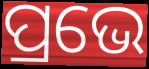
ପ୍ରଭେ